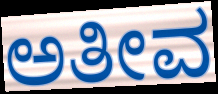
ಅತೀವ